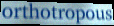
orthotropous